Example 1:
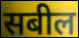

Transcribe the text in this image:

सबील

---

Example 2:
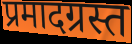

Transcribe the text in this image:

प्रमादग्रस्त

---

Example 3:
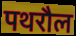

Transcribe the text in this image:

पथरौल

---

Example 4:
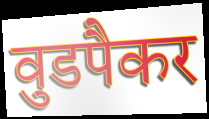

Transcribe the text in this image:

वुडपैकर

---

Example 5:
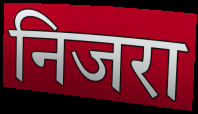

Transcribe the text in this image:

निजरा